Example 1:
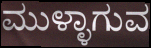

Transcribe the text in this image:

ಮುಳ್ಳಾಗುವ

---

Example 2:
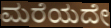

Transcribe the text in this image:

ಮರೆಯದೇ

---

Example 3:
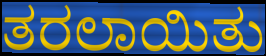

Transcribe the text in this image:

ತರಲಾಯಿತು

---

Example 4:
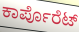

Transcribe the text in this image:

ಕಾರ್ಪೊರೆಟ್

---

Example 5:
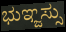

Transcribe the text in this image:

ಭುಞ್ಜಸ್ಸು